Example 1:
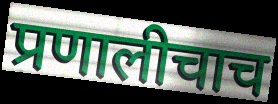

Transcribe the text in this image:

प्रणालीचाच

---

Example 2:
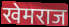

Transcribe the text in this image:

खेमराज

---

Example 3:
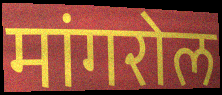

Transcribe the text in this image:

मांगरोल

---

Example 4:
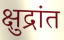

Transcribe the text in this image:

क्षुद्रांत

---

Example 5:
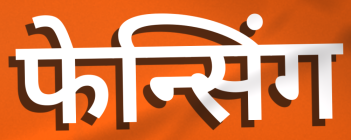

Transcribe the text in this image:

फेन्सिंग